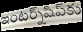
ఇంటర్న్‌షిప్‌కు